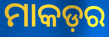
ମାକଡ଼ର